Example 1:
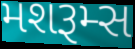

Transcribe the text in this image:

મશરૂમ્સ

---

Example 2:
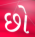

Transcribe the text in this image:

છો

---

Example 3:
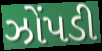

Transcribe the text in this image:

ઝોંપડી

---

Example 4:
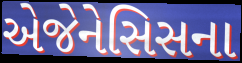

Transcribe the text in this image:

એજેનેસિસના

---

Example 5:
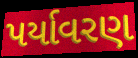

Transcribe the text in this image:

પર્યાવરણ